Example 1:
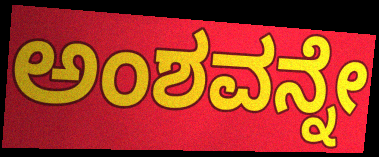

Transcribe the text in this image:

ಅಂಶವನ್ನೇ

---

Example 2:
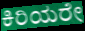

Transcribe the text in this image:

ಕಿರಿಯರೇ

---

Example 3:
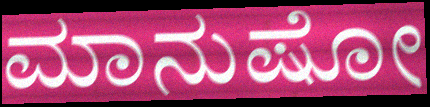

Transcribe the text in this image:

ಮಾನುಷೋ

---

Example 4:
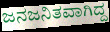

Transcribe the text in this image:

ಜನಜನಿತವಾಗಿದ್ದ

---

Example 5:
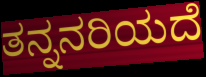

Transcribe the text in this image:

ತನ್ನನರಿಯದೆ